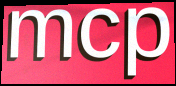
mcp